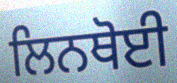
ਲਿਨਥੋਈ